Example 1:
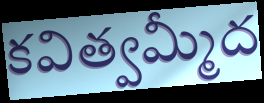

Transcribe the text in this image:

కవిత్వమ్మీద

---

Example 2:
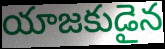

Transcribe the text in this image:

యాజకుడైన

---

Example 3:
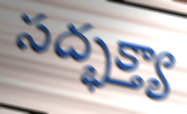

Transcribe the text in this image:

సద్భక్త్యా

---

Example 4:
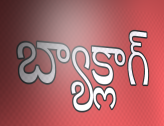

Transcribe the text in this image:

బ్యాక్లాగ్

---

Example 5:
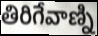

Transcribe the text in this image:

తిరిగేవాణ్ని